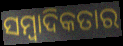
ସମ୍ୱାଦିକତାର